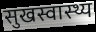
सुखस्वास्थ्य